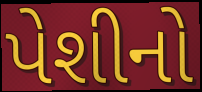
પેશીનો